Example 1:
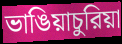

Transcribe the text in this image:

ভাঙিয়াচুরিয়া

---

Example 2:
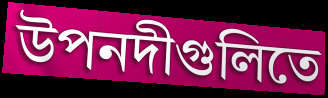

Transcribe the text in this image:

উপনদীগুলিতে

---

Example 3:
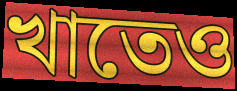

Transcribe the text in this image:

খাতেও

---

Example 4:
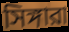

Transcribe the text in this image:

সিঙ্গারা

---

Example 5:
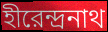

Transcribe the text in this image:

হীরেন্দ্রনাথ